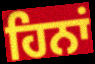
ਹਿਨਾਂ